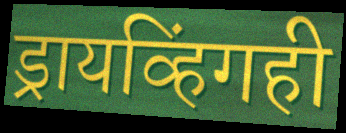
ड्रायव्हिंगही